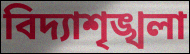
বিদ্যাশৃঙ্খলা